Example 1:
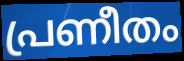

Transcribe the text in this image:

പ്രണീതം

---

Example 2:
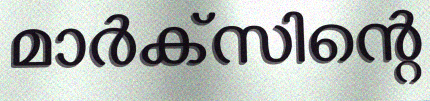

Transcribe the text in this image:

മാർക്‌സിന്റെ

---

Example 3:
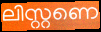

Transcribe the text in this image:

ലിസ്റ്റണെ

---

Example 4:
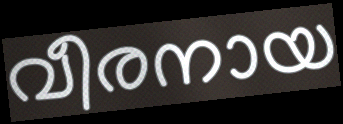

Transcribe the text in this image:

വീരനായ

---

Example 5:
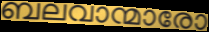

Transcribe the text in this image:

ബലവാന്മാരോ